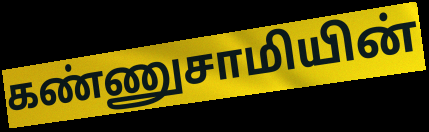
கண்ணுசாமியின்